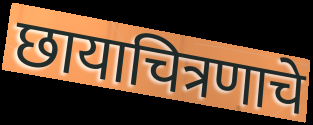
छायाचित्रणाचे